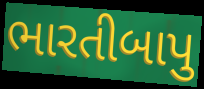
ભારતીબાપુ